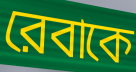
রেবাকে